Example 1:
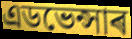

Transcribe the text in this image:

এডভেন্সাৰ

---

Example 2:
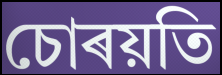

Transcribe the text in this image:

চোৰয়তি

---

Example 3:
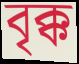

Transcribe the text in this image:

বৃক্ক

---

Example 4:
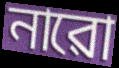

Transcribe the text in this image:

নাৱো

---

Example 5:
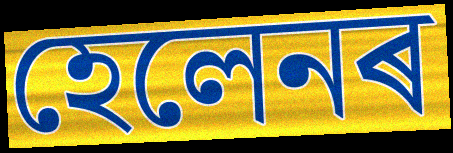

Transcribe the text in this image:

হেলেনৰ